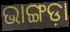
ଭାଙ୍ଗଡ଼ା